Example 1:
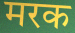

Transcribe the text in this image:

मरक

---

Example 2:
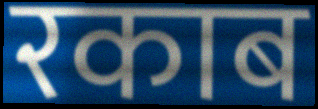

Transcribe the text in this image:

रकाब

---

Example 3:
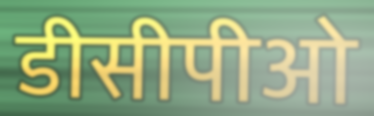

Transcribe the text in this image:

डीसीपीओ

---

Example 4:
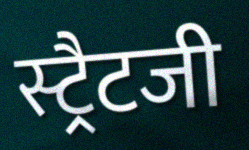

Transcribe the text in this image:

स्‍ट्रैटजी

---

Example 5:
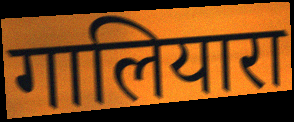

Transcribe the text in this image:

गालियारा